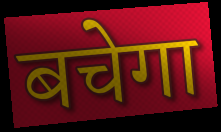
बचेगा